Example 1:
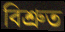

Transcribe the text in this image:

বিশ্রুত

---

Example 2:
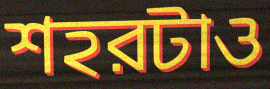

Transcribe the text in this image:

শহরটাও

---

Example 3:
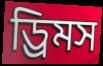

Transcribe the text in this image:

ড্রিমস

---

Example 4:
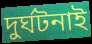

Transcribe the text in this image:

দুর্ঘটনাই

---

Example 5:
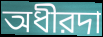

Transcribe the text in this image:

অধীরদা